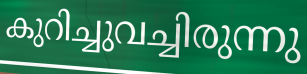
കുറിച്ചുവച്ചിരുന്നു